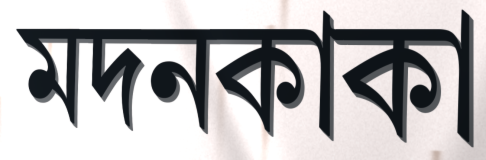
মদনকাকা